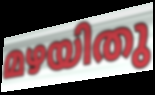
മഴയിതു